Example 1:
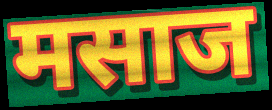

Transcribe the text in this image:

मसाज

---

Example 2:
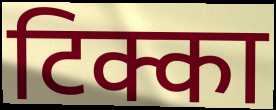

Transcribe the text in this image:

टिक्का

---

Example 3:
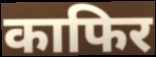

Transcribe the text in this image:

काफिर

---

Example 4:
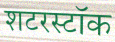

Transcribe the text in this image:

शटरस्टॉक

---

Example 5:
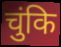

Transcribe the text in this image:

चुंकि